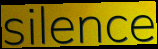
silence